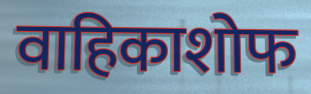
वाहिकाशोफ